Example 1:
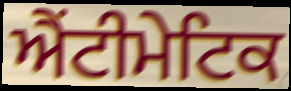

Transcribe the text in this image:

ਐਂਟੀਮੇਟਿਕ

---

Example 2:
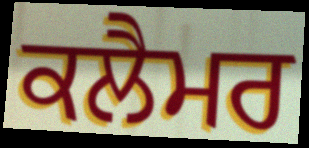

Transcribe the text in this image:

ਕਲੈਮਰ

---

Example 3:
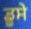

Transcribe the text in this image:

ਡੂਸੇ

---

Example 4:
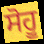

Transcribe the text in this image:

ਸੋਹੂ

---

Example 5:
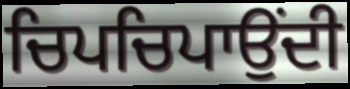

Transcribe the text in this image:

ਚਿਪਚਿਪਾਉਂਦੀ